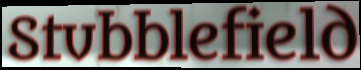
Stubblefield